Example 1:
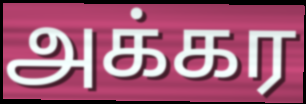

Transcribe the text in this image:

அக்கர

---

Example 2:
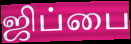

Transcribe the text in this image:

ஜிப்பை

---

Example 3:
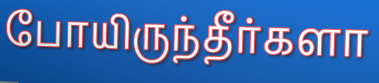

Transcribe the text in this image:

போயிருந்தீர்களா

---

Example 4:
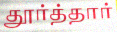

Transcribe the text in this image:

தூர்த்தார்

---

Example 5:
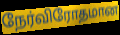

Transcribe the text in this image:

நேர்விரோதமான